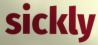
sickly